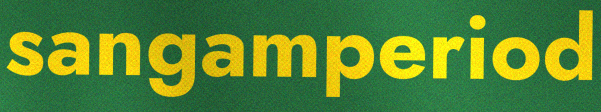
sangamperiod